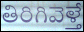
తిరిగివెళ్తే